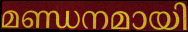
മണ്ഡനമായി